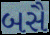
બસૈ